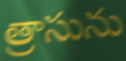
త్రాసును